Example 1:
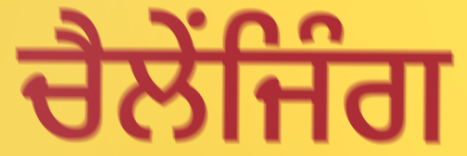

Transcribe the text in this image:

ਚੈਲੇਂਜਿੰਗ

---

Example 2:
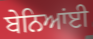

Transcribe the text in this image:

ਬੇਨਿਆਂਈ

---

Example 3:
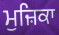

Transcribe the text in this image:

ਮੁਜ਼ਿਕਾ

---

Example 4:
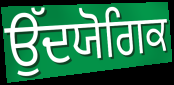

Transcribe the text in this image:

ਉੱਦਯੋਗਿਕ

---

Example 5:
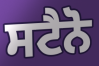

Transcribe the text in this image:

ਸਟੈਨੋ